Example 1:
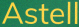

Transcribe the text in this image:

Astell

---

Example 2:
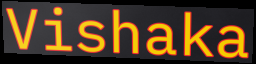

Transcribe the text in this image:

Vishaka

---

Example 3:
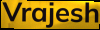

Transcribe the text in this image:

Vrajesh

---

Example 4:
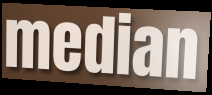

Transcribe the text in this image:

median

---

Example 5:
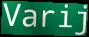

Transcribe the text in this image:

Varij